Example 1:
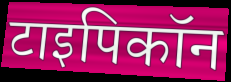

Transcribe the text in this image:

टाइपिकॉन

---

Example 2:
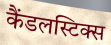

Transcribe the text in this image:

कैंडलस्टिक्स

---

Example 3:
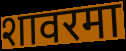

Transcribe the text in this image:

शावरमा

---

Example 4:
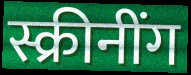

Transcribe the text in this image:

स्क्रीनींग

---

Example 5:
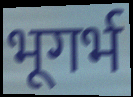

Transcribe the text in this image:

भूगर्भ